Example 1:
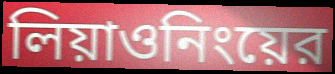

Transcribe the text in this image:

লিয়াওনিংয়ের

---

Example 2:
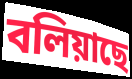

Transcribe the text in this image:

বলিয়াছে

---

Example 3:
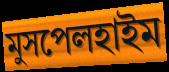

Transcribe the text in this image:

মুসপেলহাইম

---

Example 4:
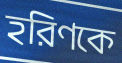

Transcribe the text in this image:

হরিণকে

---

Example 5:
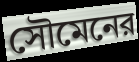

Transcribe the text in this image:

সৌমেনের